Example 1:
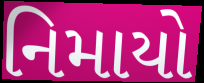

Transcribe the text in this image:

નિમાયો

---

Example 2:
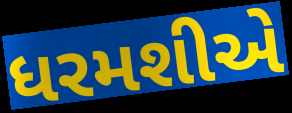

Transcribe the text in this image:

ધરમશીએ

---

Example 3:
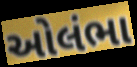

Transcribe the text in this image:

ઓલંભા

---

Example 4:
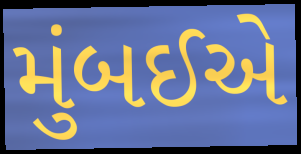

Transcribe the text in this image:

મુંબઈએ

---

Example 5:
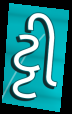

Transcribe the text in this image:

ટ્ટી